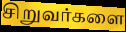
சிறுவர்களை